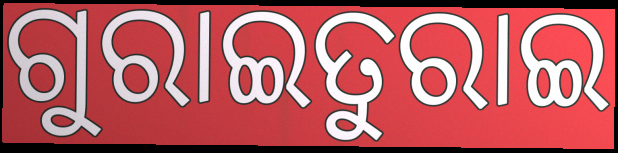
ଗୁରାଇତୁରାଇ